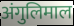
अंगुलिमाल